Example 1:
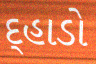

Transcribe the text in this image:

દ્હાડો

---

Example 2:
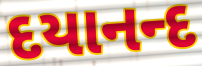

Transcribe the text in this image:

દયાનન્દ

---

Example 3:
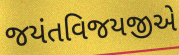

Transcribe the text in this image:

જયંતવિજયજીએ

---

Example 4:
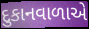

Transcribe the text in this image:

દુકાનવાળાએ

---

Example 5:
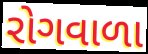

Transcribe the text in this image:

રોગવાળા